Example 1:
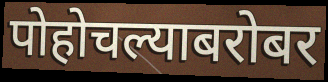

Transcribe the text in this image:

पोहोचल्याबरोबर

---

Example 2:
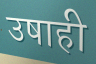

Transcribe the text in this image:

उषाही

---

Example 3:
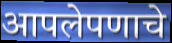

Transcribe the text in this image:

आपलेपणाचे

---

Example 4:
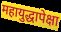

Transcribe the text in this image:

महायुद्धापेक्षा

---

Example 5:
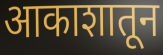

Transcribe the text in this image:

आकाशातून